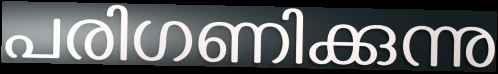
പരിഗണിക്കുന്നു